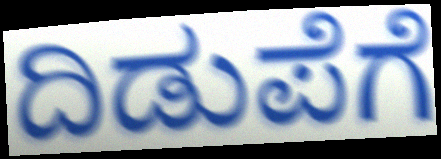
ದಿಡುಪೆಗೆ